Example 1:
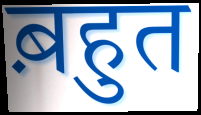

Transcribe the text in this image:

ब़हुत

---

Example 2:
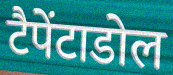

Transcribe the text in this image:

टैपेंटाडोल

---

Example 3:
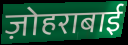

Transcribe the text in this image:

ज़ोहराबाई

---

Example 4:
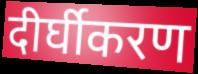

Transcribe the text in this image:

दीर्घीकरण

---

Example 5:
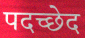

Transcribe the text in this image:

पदच्छेद